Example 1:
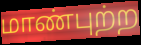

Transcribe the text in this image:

மாண்புற்ற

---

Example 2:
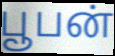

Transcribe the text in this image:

பூபன்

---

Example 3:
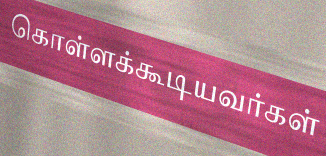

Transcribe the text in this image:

கொள்ளக்கூடியவர்கள்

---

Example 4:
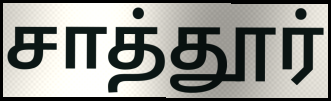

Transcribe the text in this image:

சாத்தூர்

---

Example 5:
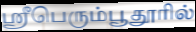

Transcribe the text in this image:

ஸ்ரீபெரும்பூதூரில்